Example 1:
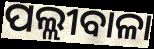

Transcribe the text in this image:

ପଲ୍ଲୀବାଳା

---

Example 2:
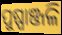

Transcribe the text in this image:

ପୁଷ୍ପାଞ୍ଜଳି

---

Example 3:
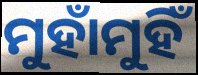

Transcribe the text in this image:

ମୁହାଁମୁହିଁ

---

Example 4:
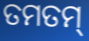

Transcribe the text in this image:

ତମତମ୍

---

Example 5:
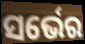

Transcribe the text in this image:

ସର୍ଭେର